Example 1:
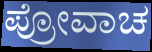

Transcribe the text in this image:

ಪ್ರೋವಾಚ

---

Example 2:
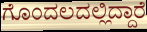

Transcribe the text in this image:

ಗೊಂದಲದಲ್ಲಿದ್ದಾರೆ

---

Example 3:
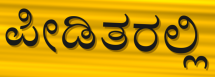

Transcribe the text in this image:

ಪೀಡಿತರಲ್ಲಿ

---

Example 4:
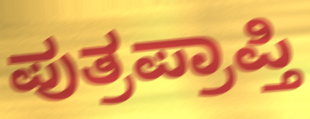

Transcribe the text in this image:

ಪುತ್ರಪ್ರಾಪ್ತಿ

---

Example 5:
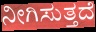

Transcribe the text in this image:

ನೀಗಿಸುತ್ತದೆ